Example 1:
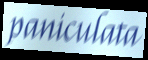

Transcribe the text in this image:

paniculata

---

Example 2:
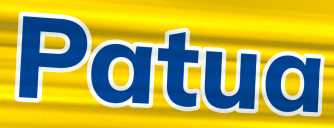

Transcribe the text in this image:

Patua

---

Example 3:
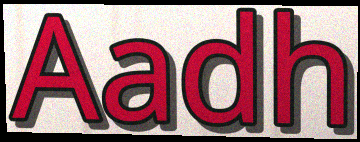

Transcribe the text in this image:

Aadh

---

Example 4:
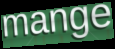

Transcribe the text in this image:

mange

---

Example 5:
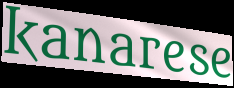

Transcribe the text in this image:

kanarese